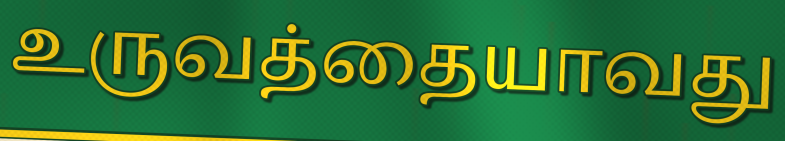
உருவத்தையாவது